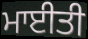
ਮਾਈਤੀ